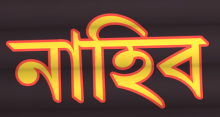
নাহিব